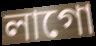
লাগো